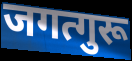
जगत्गुरू